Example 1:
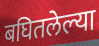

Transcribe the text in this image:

बघितलेल्या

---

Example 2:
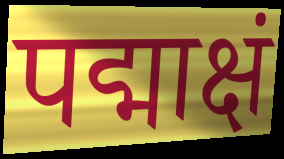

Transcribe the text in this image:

पद्माक्षं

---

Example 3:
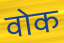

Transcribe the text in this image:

वोक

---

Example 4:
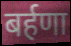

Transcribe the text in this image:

बर्हणा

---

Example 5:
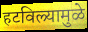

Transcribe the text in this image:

हटविल्यामुळे